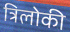
त्रिलोकी